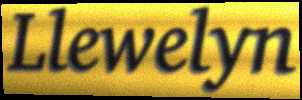
Llewelyn